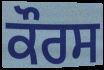
ਕੌਰਸ